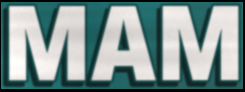
MAM